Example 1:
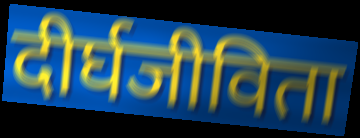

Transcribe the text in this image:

दीर्घजीविता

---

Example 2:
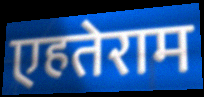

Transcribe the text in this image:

एहतेराम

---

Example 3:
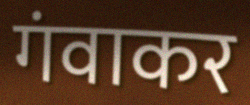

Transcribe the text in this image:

गंवाकर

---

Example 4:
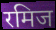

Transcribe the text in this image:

रमिज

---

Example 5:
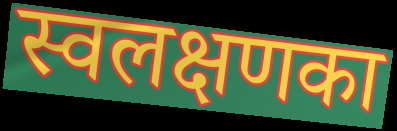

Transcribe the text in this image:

स्वलक्षणका